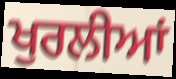
ਖੁਰਲੀਆਂ